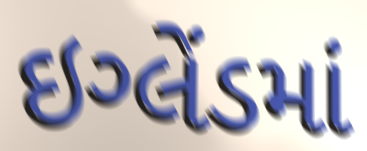
ઇગ્લેંડમાં